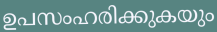
ഉപസംഹരിക്കുകയും